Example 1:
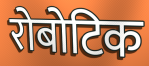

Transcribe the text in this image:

रोबोटिक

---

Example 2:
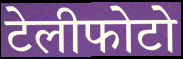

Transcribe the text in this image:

टेलीफोटो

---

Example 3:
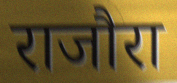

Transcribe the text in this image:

राजौरा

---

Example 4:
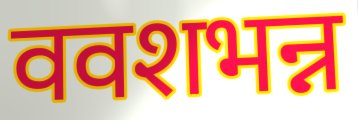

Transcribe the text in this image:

ववशभन्न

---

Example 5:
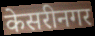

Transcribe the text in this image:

केसरीनगर